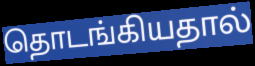
தொடங்கியதால்